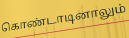
கொண்டாடினாலும்